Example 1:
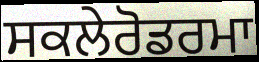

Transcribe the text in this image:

ਸਕਲੇਰੋਡਰਮਾ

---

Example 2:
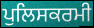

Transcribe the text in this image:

ਪੁਲਿਸਕਰਮੀ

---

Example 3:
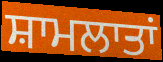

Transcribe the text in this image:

ਸ਼ਾਮਲਾਤਾਂ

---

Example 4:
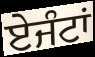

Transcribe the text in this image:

ਏਜੰਟਾਂ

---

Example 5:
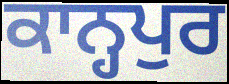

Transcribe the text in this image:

ਕਾਨ੍ਹਪੁਰ